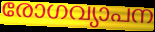
രോഗവ്യാപന